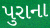
પુરાના